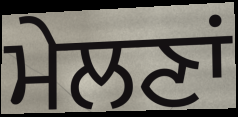
ਮੇਲਣਾਂ